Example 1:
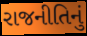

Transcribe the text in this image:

રાજનીતિનું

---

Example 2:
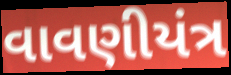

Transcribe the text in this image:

વાવણીયંત્ર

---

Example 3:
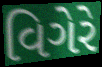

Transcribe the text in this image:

વિગેરે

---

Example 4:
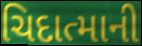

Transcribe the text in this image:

ચિદાત્માની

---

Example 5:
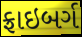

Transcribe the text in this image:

ફ્રાઇબર્ગ